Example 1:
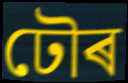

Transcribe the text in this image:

ঢৌৰ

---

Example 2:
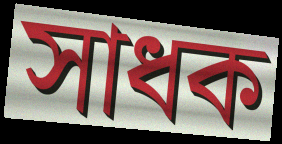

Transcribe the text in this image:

সাধক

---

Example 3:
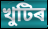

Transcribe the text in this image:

খুটিৰ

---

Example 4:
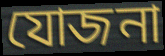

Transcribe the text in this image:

যোজনা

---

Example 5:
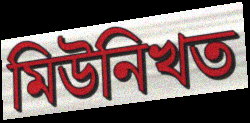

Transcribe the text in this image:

মিউনিখত